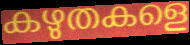
കഴുതകളെ